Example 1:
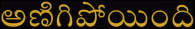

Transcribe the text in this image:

అణిగిపోయింది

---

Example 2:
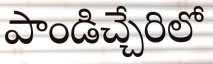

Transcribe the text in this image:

పాండిచ్చేరిలో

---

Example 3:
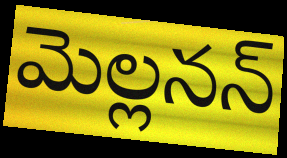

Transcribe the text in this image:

మెల్లనన్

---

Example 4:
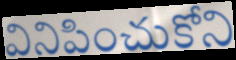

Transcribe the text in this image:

వినిపించుకోని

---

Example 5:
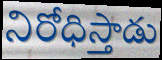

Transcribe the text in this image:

నిరోధిస్తాడు